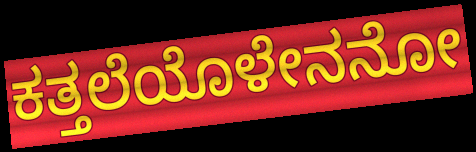
ಕತ್ತಲೆಯೊಳೇನನೋ